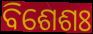
ବିଶେଶଃ